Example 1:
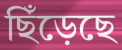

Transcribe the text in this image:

ছিঁড়েছে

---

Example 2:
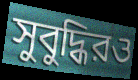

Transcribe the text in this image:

সুবুদ্ধিরও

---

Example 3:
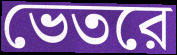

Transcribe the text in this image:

ভেতরে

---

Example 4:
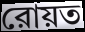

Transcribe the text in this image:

রোয়ত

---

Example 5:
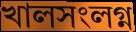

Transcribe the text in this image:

খালসংলগ্ন